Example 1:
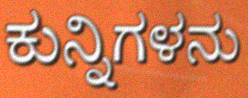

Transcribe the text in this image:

ಕುನ್ನಿಗಳನು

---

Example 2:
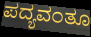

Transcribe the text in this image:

ಪದ್ಯವಂತೂ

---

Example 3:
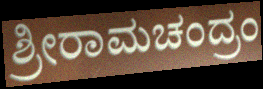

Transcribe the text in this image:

ಶ್ರೀರಾಮಚಂದ್ರಂ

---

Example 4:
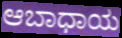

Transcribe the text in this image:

ಆಬಾಧಾಯ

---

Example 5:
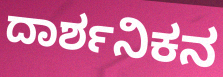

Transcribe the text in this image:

ದಾರ್ಶನಿಕನ